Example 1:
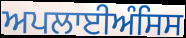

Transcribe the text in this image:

ਅਪਲਾਈਅੰਸਿਸ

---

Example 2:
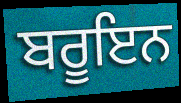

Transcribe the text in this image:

ਬਰੂਇਨ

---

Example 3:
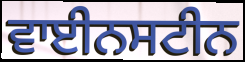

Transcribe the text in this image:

ਵਾਈਨਸਟੀਨ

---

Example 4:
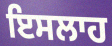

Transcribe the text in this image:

ਇਸਲਾਹ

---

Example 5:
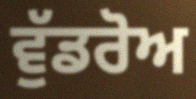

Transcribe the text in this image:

ਵੁੱਡਰੋਅ